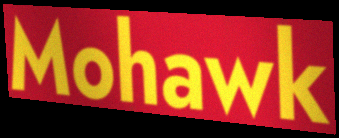
Mohawk